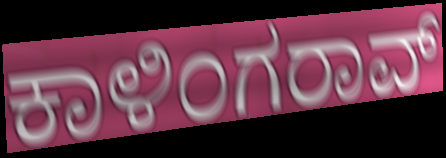
ಕಾಳಿಂಗರಾವ್